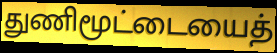
துணிமூட்டையைத்